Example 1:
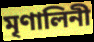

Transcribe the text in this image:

মৃণালিনী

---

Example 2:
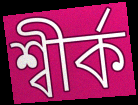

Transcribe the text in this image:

শ্বীৰ্ক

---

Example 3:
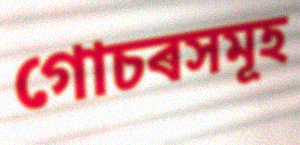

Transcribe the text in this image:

গোচৰসমূহ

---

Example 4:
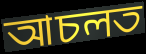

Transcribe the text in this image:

আচলত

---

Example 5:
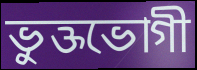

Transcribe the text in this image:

ভুক্তভোগী